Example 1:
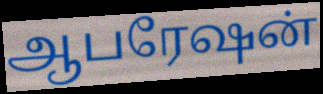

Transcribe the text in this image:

ஆபரேஷன்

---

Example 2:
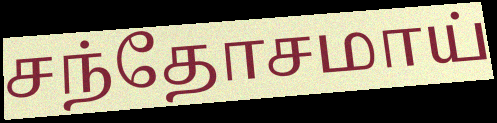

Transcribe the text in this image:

சந்தோசமாய்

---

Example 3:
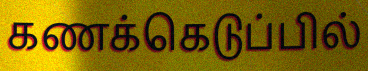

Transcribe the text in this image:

கணக்கெடுப்பில்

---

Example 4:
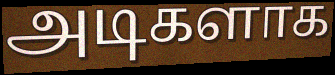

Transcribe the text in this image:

அடிகளாக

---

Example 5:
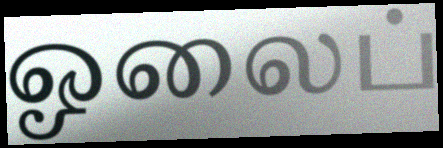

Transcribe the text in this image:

ஓலைப்